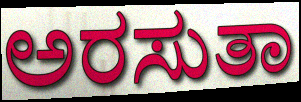
ಅರಸುತಾ